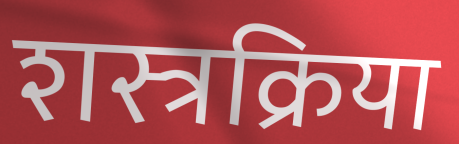
शस्त्रक्रिया